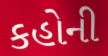
કહોની